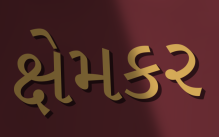
ક્ષેમકર